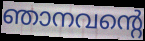
ഞാനവന്റെ